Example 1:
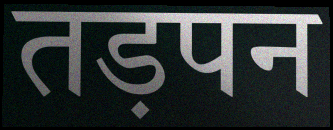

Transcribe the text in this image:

तड़पन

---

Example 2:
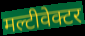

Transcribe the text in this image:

मल्टीवेक्टर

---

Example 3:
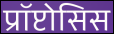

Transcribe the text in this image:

प्रॉप्टोसिस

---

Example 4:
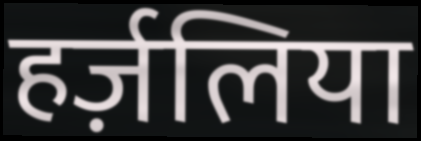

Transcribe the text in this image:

हर्ज़लिया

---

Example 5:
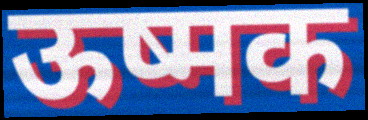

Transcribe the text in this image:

ऊष्मक